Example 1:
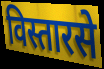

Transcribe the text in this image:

विस्तारसे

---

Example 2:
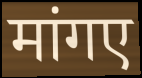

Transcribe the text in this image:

मांगए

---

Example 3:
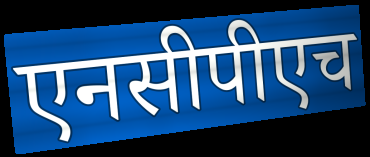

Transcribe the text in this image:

एनसीपीएच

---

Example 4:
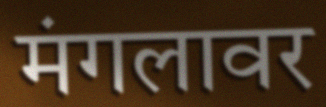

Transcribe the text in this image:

मंगलावर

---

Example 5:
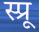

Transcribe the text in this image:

स्प्रू